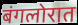
बंगलोरात